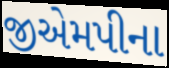
જીએમપીના